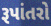
રૂપાંતરો